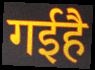
गईहै